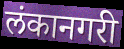
लंकानगरी